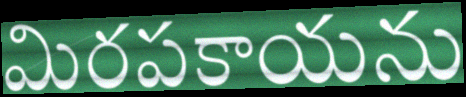
మిరపకాయను